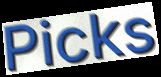
Picks